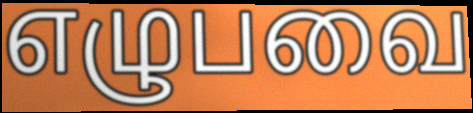
எழுபவை